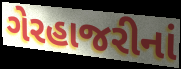
ગેરહાજરીનાં